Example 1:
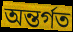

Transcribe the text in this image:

অন্তৰ্গত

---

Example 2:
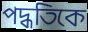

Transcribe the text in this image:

পদ্ধতিকে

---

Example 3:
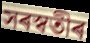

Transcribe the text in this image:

সৰস্বতীৰ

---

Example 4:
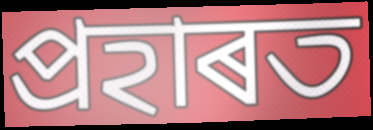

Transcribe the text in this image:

প্ৰহাৰত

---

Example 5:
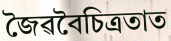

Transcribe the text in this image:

জৈৱবৈচিত্ৰতাত